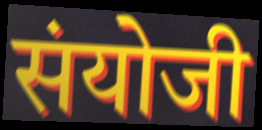
संयोजी